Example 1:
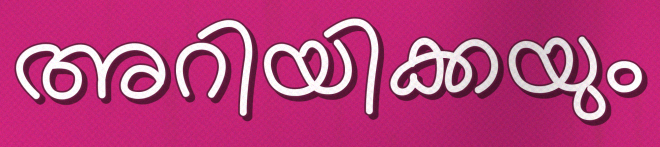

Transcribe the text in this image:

അറിയിക്കയും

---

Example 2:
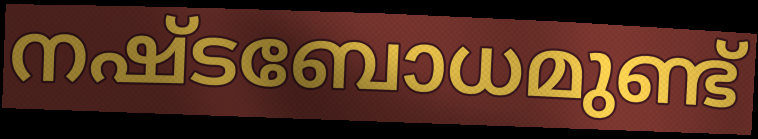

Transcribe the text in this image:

നഷ്ടബോധമുണ്ട്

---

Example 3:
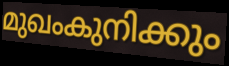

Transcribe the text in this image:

മുഖംകുനിക്കും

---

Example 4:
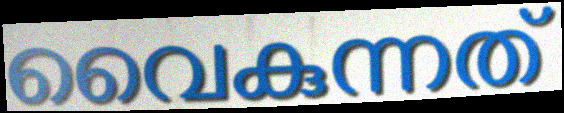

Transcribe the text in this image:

വൈകുന്നത്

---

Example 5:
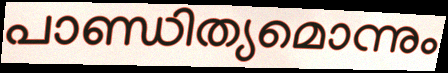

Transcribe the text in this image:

പാണ്ഡിത്യമൊന്നും